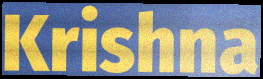
Krishna